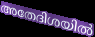
അതേദിശയിൽ